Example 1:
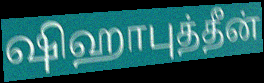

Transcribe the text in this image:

ஷிஹாபுத்தீன்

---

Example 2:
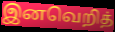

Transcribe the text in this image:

இனவெறித்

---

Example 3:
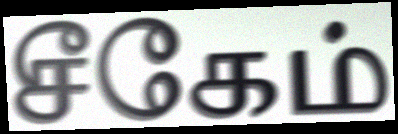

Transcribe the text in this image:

சீகேம்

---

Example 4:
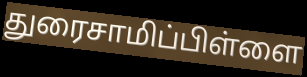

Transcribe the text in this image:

துரைசாமிப்பிள்ளை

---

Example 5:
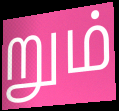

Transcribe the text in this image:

றும்